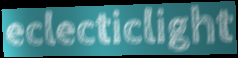
eclecticlight